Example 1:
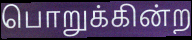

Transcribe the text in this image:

பொறுக்கின்ற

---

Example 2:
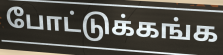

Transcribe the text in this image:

போட்டுக்கங்க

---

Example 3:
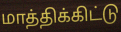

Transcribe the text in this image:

மாத்திக்கிட்டு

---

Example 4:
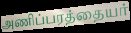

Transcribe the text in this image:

அணிப்பரத்தையர்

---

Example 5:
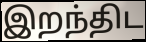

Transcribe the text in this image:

இறந்திட